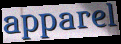
apparel